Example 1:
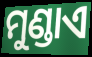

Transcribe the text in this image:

ମୁଣ୍ଡାଏ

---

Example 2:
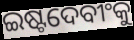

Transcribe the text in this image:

ଇଷ୍ଟଦେବୀଂକୁ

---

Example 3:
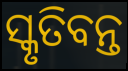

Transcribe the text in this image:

ସ୍କୃତିବନ୍ତ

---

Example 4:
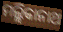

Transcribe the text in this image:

ମଲ୍ଲିକାନାଥ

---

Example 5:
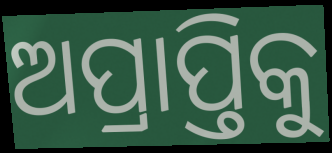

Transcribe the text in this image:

ଅପ୍ରାପ୍ତିକୁ